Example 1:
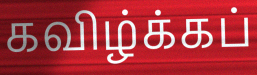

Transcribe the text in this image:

கவிழ்க்கப்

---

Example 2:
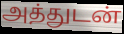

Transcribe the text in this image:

அத்துடன்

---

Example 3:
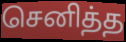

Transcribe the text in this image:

செனித்த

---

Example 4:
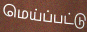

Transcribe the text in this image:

மெய்ப்பட்டு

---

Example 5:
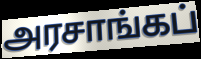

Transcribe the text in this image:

அரசாங்கப்